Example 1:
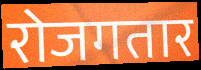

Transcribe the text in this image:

रोजगतार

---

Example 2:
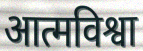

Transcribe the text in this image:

आत्मविश्वा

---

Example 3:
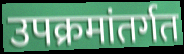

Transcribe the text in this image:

उपक्रमांतर्गत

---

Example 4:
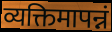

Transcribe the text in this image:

व्यक्तिमापन्नं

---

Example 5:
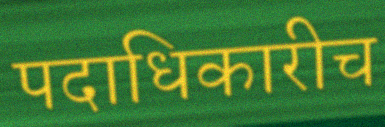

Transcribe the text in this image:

पदाधिकारीच